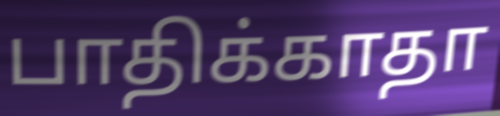
பாதிக்காதா